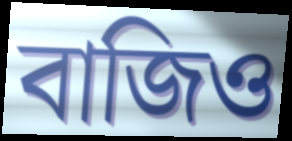
বাজিও